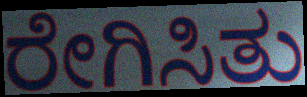
ರೇಗಿಸಿತು